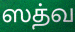
ஸத்வ